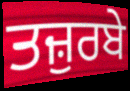
ਤਜ਼ੁਰਬੇ